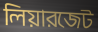
লিয়ারজেট